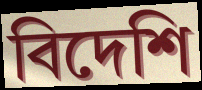
বিদেশি